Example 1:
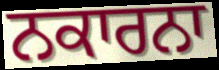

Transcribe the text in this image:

ਨਕਾਰਨਾ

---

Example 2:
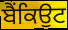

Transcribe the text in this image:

ਬੈਂਕਿਉਟ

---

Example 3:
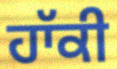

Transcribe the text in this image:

ਹਾੱਕੀ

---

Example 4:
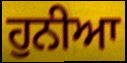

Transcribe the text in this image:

ਹੁਨੀਆ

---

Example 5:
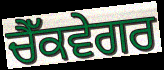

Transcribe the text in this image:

ਚੈੱਕਵੇਗਰ